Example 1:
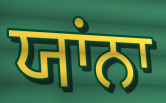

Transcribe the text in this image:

ਯਾਂਨਾ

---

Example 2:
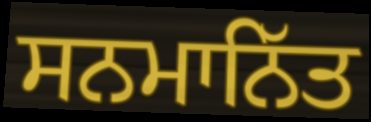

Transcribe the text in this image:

ਸਨਮਾਨਿੱਤ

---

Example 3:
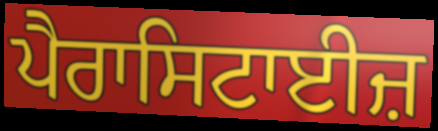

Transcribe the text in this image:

ਪੈਰਾਸਿਟਾਈਜ਼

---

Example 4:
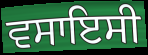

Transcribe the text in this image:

ਵਸਾਇਸੀ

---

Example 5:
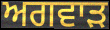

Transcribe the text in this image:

ਅਗਵਾੜ